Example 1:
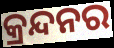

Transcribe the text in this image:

କ୍ରନ୍ଦନର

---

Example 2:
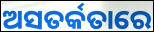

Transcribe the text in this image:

ଅସତର୍କତାରେ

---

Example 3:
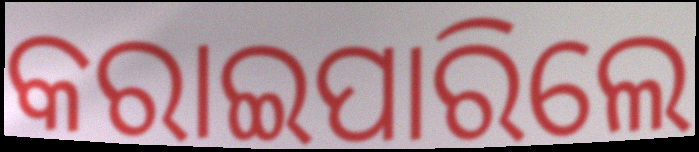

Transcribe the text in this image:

କରାଇପାରିଲେ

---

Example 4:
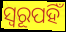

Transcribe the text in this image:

ସ୍ୱରୂପହିଁ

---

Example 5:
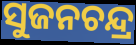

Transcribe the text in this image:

ସୁଜନଚନ୍ଦ୍ର